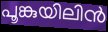
പൂങ്കുയിലിൻ